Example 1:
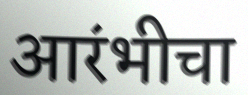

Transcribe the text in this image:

आरंभीचा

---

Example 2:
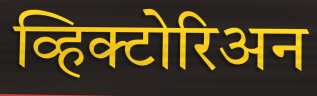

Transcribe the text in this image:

व्हिक्टोरिअन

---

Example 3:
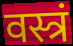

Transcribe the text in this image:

वस्त्रं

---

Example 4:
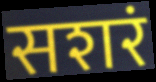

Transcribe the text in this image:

सशरं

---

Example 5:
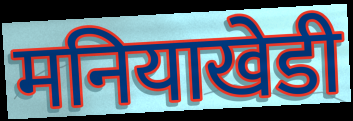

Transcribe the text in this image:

मनियाखेडी